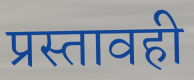
प्रस्तावही